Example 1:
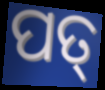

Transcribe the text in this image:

ପତ୍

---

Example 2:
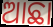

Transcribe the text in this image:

ଆଛା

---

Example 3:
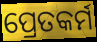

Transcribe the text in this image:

ପ୍ରେତକର୍ମ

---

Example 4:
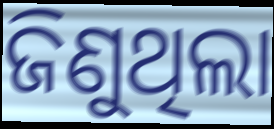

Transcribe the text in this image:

ଜିଣୁଥିଲା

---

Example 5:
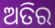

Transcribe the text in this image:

ଅତିର